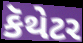
કૅથેટર